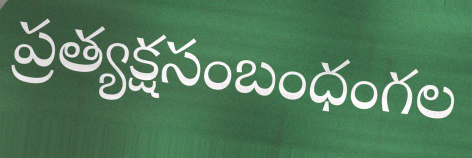
ప్రత్యక్షసంబంధంగల